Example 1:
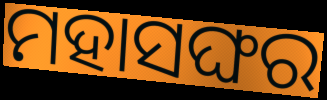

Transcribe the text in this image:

ମହାସଙ୍ଘର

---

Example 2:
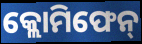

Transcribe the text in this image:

କ୍ଲୋମିଫେନ୍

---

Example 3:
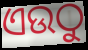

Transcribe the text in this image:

ଏଉଠୁ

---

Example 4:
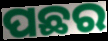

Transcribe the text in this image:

ପଛର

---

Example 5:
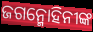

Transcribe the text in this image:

ଜଗନ୍ମୋହିନୀଙ୍କ